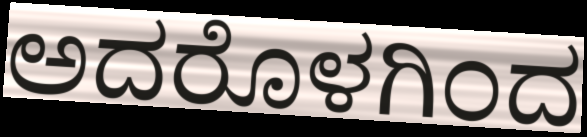
ಅದರೊಳಗಿಂದ